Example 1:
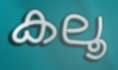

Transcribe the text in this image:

കലൂ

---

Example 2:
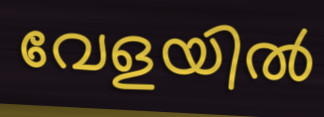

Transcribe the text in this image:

വേളയിൽ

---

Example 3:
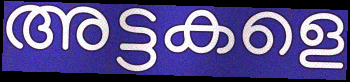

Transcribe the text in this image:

അട്ടകളെ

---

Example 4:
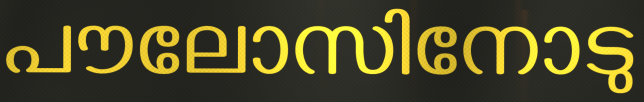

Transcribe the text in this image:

പൗലോസിനോടു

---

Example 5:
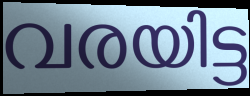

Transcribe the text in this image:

വരയിട്ട